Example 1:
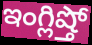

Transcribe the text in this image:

ఇంగ్లిష్తో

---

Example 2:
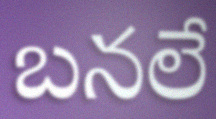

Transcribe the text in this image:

బనలే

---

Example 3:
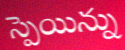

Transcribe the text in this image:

స్పెయిన్ను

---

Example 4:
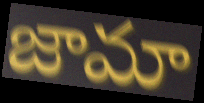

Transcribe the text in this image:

జామా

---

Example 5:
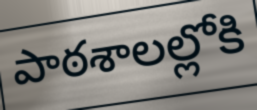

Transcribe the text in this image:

పాఠశాలల్లోకి